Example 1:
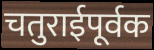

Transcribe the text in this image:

चतुराईपूर्वक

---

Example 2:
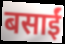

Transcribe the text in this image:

बसाईं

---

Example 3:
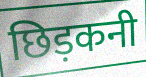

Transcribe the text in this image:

छिड़कनी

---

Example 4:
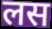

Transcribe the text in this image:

लस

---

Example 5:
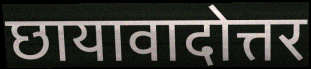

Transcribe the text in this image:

छायावादोत्तर